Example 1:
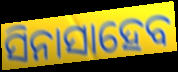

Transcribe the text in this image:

ସିନାସାହେବ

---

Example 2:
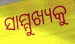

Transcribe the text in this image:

ସାମ୍ମୁଖ୍ୟକୁ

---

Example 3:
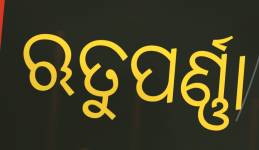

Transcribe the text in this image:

ଋତୁପର୍ଣ୍ଣା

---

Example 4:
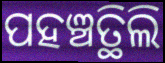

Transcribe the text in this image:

ପହଞ୍ଚତ୍ଥିଲି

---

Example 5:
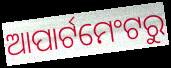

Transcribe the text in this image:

ଆପାର୍ଟମେଂଟରୁ